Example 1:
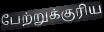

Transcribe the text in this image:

பேற்றுக்குரிய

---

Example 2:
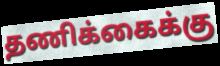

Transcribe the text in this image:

தணிக்கைக்கு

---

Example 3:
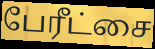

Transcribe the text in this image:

பேரீட்சை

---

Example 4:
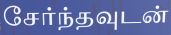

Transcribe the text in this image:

சேர்ந்தவுடன்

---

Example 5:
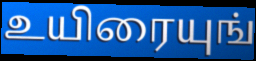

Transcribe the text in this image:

உயிரையுங்